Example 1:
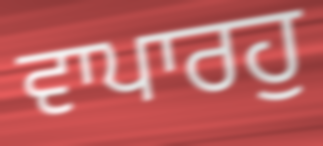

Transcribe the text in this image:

ਵਾਪਾਰਹੁ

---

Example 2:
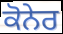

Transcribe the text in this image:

ਕੋਨੇਰ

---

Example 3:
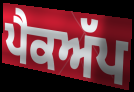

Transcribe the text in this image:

ਪੈਕਅੱਪ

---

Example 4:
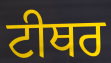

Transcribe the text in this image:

ਟੀਥਰ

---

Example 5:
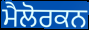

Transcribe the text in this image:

ਮੈਲੋਰਕਨ